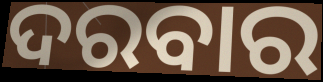
ଦରବାର